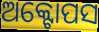
ଅକ୍ଟୋପସ